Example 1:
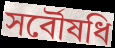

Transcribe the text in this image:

সর্বৌষধি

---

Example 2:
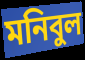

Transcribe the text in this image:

মনিবুল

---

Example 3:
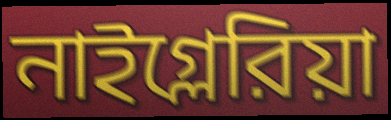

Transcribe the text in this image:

নাইগ্লেরিয়া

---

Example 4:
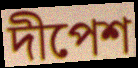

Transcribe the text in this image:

দীপেশ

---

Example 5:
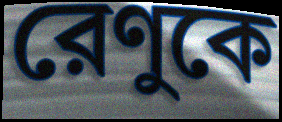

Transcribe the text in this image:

রেণুকে